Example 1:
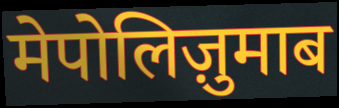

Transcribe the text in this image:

मेपोलिज़ुमाब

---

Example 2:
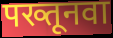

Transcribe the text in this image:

पख्तूनवा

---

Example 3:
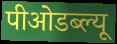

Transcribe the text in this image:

पीओडब्ल्यू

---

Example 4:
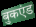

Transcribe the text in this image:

बुकएंड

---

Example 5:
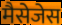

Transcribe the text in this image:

मैसेजेस